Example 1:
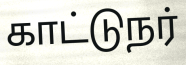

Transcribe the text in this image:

காட்டுநர்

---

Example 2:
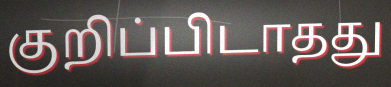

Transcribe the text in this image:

குறிப்பிடாதது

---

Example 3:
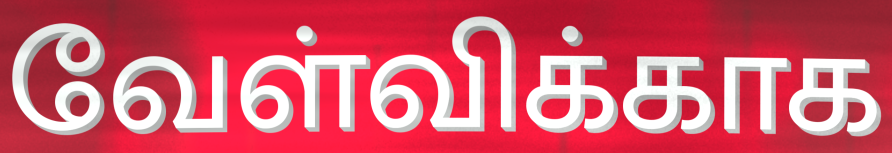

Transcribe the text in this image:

வேள்விக்காக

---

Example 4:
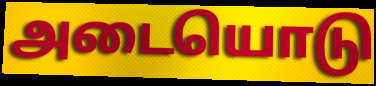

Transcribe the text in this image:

அடையொடு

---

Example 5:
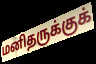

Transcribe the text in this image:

மனிதருக்குக்